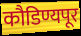
कौडिण्यपूर